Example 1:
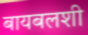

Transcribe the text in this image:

बायबलशी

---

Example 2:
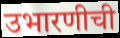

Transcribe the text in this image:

उभारणीची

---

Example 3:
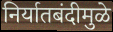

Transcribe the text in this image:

निर्यातबंदीमुळे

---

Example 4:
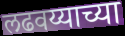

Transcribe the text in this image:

लढवय्याच्या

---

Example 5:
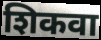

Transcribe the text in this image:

शिकवा